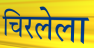
चिरलेला